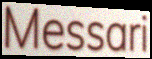
Messari